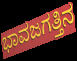
ಭಾವಜಗತ್ತಿನ